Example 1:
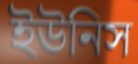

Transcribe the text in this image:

ইউনিস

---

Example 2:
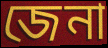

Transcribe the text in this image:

জেনা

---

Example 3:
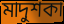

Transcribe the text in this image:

মাদুশকা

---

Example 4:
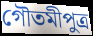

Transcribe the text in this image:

গৌতমীপুত্র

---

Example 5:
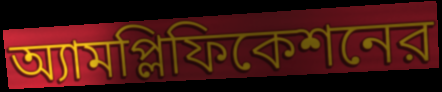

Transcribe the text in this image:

অ্যামপ্লিফিকেশনের